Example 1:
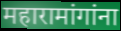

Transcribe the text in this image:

महारामांगांना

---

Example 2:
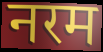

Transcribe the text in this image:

नरम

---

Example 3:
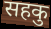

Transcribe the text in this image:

सहकु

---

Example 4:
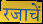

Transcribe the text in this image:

रजाचें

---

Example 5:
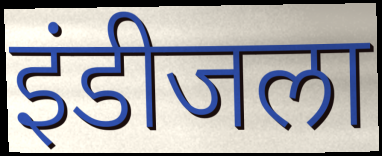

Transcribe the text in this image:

इंडीजला